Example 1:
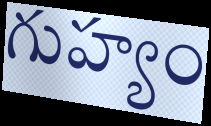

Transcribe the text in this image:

గుహ్యం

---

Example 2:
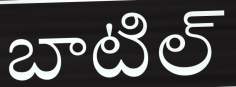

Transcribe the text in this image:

బాటిల్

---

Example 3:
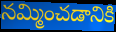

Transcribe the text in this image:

నమ్మించడానికి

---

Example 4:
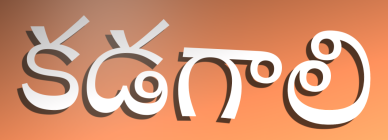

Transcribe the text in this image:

కడగాలి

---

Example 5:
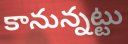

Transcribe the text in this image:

కానున్నట్టు